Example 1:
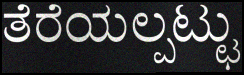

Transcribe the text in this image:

ತೆರೆಯಲ್ಪಟ್ಟು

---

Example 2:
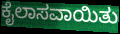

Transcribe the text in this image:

ಕೈಲಾಸವಾಯಿತು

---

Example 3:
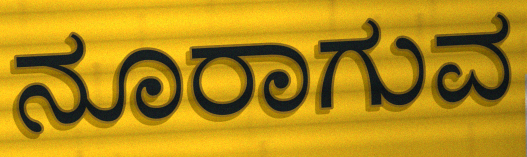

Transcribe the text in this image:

ನೂರಾಗುವ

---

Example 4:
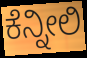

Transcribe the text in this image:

ಕೆನ್ನೀಲಿ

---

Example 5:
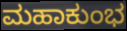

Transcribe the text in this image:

ಮಹಾಕುಂಭ